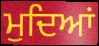
ਮੁਦਿਆਂ